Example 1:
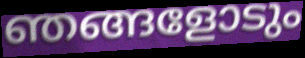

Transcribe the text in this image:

ഞങ്ങളോടും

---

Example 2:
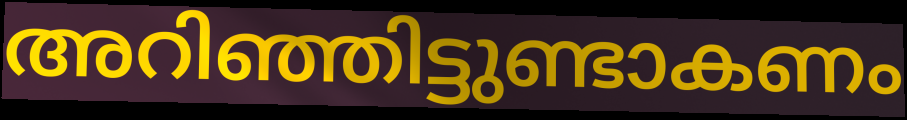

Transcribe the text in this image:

അറിഞ്ഞിട്ടുണ്ടാകണം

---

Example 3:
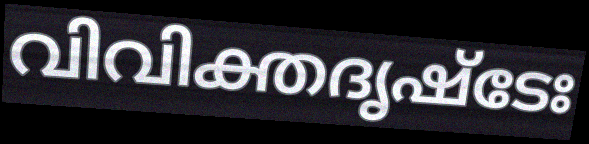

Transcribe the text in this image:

വിവിക്തദൃഷ്ടേഃ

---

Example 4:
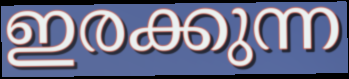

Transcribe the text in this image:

ഇരക്കുന്ന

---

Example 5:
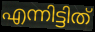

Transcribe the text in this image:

എന്നിട്ടിത്